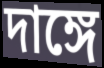
দাঙ্গে